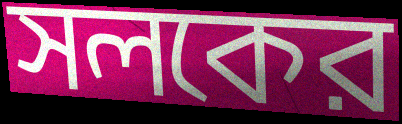
সলকের